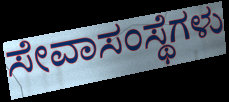
ಸೇವಾಸಂಸ್ಥೆಗಳು